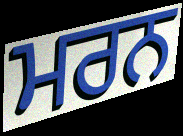
ਮਰਨ